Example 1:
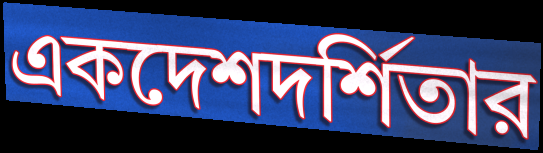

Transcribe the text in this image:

একদেশদর্শিতার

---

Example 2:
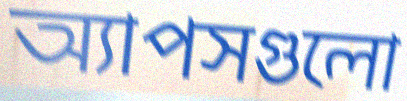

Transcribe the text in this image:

অ্যাপসগুলো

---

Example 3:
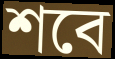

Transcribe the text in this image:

শবে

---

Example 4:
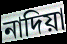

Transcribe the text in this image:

নাদিয়া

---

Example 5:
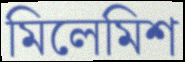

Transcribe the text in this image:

মিলেমিশ